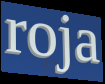
roja